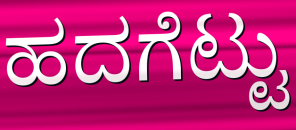
ಹದಗೆಟ್ಟು